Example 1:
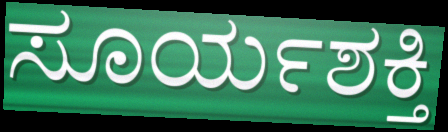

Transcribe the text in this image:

ಸೂರ್ಯಶಕ್ತಿ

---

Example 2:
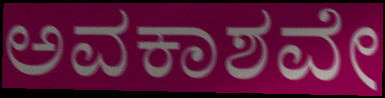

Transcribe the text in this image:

ಅವಕಾಶವೇ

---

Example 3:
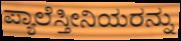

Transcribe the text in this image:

ಪ್ಯಾಲೆಸ್ತೀನಿಯರನ್ನು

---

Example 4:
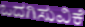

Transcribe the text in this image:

ಒದಗಿಸುವಿಕೆ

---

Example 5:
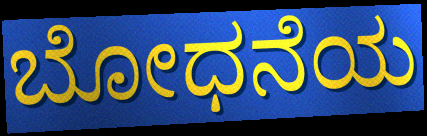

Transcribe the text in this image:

ಬೋಧನೆಯ